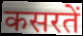
कसरतें